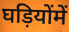
घड़ियोंमें